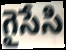
గైసేసి